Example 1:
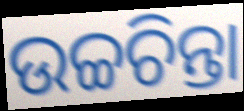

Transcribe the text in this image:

ଉଚ୍ଚଚିନ୍ତା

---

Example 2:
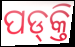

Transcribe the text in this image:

ପଡ୍‌କ୍ତି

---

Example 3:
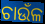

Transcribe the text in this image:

ଚାଉଁଳ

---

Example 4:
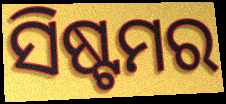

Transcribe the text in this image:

ସିଷ୍ଟମର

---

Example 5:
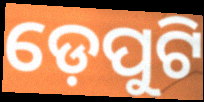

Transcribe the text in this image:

ଡ଼େପୁଟି